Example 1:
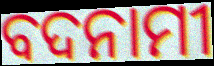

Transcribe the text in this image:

ବଦନାମୀ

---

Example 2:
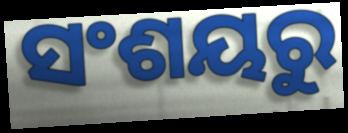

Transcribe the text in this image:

ସଂଶୟରୁ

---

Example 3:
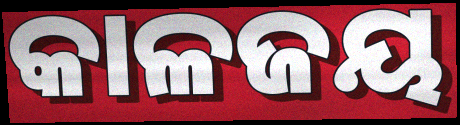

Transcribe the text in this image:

କାଳଜୟ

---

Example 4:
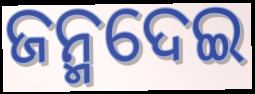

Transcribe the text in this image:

ଜନ୍ମଦେଇ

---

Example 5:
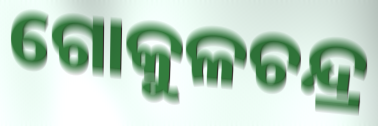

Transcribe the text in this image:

ଗୋକୁଳଚନ୍ଦ୍ର